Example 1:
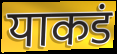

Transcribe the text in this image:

याकडं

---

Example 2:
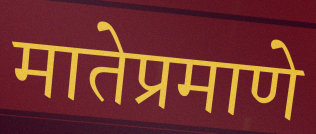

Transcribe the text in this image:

मातेप्रमाणे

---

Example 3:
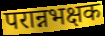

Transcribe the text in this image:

परान्नभक्षक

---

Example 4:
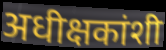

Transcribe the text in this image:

अधीक्षकांशी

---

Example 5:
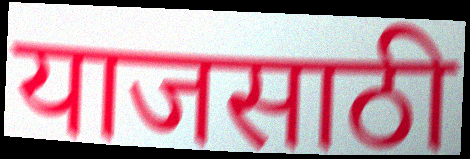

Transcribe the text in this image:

याजसाठी